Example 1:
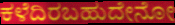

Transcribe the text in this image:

ಕಳೆದಿರಬಹುದೇನೋ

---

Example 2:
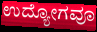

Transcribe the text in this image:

ಉದ್ಯೋಗವೂ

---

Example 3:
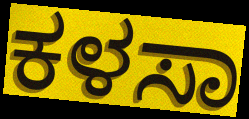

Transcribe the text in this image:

ಕಳಸಾ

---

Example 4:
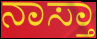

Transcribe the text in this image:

ನಾಸ್ತಾ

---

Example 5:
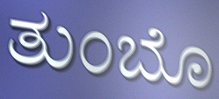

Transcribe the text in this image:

ತುಂಬೊ